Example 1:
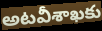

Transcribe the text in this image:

అటవీశాఖకు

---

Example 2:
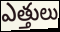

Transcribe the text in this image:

ఎత్తులు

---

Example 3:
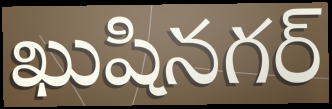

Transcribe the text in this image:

ఖుషినగర్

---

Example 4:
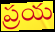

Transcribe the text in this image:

ప్రయ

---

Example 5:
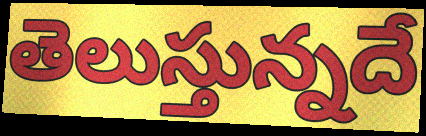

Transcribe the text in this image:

తెలుస్తున్నదే